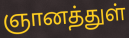
ஞானத்துள்